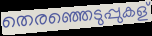
തെരഞ്ഞെടുപ്പുകള്